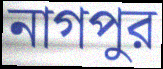
নাগপুর